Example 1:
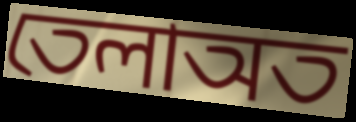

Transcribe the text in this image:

তেলাঅত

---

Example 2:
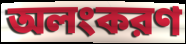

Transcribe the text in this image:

অলংকরণ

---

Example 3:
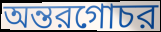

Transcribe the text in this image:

অন্তরগোচর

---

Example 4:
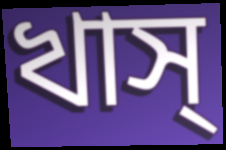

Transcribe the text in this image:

খাস্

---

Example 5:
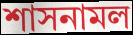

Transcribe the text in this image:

শাসনামল